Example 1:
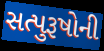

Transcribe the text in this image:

સત્પુરૂષોની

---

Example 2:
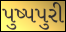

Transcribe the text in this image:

પુષ્પપુરી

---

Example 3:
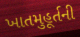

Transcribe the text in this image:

ખાતમુહૂર્તની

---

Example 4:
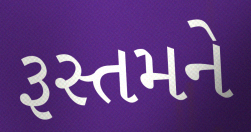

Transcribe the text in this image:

રૂસ્તમને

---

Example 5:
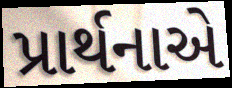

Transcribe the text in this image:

પ્રાર્થનાએ